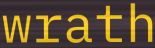
wrath